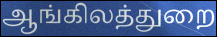
ஆங்கிலத்துறை